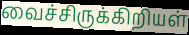
வைச்சிருக்கிறியள்